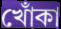
খোঁকা